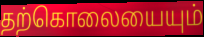
தற்கொலையையும்